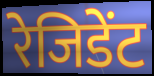
रेजिडेंट